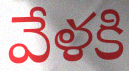
వేళకి